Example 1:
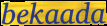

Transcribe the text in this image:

bekaada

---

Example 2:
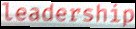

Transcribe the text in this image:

leadership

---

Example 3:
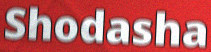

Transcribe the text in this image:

Shodasha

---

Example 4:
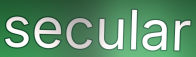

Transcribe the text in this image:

secular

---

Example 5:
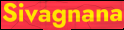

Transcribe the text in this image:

Sivagnana